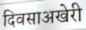
दिवसाअखेरी